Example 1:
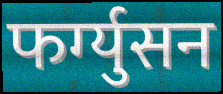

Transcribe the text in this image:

फर्ग्युसन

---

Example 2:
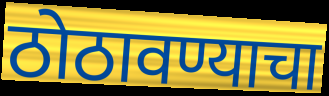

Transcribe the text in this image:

ठोठावण्याचा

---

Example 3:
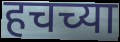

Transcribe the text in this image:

हचच्या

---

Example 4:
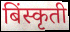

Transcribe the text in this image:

बिंस्कृती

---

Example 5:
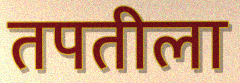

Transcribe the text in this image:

तपतीला